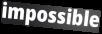
impossible